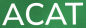
ACAT